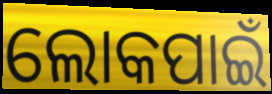
ଲୋକପାଇଁ